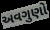
અવગુણો